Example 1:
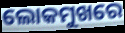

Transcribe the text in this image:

ଲୋକମୁଖରେ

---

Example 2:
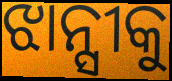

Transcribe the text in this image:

ଝାନ୍ସୀକୁ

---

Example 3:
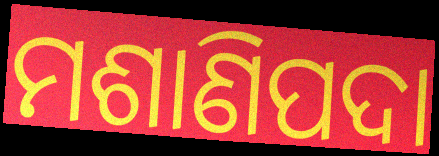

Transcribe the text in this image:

ମଶାଣିପଦା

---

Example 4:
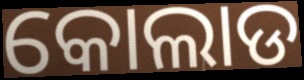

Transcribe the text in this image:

କୋଲାଡ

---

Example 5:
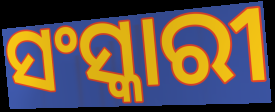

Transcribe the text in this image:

ସଂସ୍କାରୀ